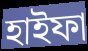
হাইফা